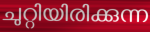
ചുറ്റിയിരിക്കുന്ന